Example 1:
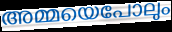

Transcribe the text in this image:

അമ്മയെപോലും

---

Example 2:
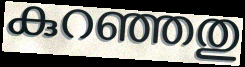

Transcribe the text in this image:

കുറഞ്ഞതു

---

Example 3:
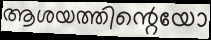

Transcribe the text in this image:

ആശയത്തിന്റെയോ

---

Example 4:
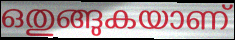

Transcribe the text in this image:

ഒതുങ്ങുകയാണ്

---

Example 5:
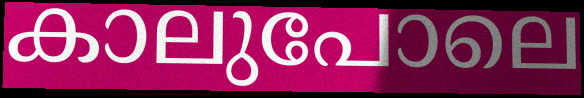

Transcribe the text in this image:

കാലുപോലെ